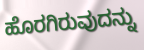
ಹೊರಗಿರುವುದನ್ನು